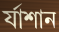
র্যাশান